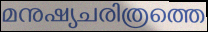
മനുഷ്യചരിത്രത്തെ